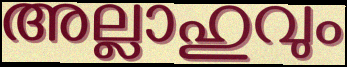
അല്ലാഹുവും